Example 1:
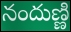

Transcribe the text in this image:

నందుణ్ణి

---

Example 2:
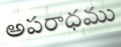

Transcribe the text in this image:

అపరాధము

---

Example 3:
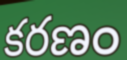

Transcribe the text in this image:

కరణం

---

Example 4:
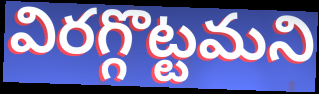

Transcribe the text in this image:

విరగ్గొట్టమని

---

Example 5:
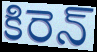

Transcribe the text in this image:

కిరెన్